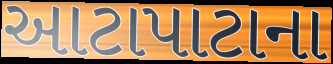
આટાપાટાના